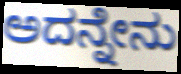
ಅದನ್ನೇನು